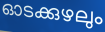
ഓടക്കുഴലും